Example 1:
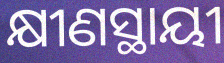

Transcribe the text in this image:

କ୍ଷୀଣସ୍ଥାୟୀ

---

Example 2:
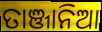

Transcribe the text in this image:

ତାଞ୍ଜାନିଆ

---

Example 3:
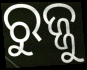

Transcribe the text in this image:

ରୁଜ୍ଜୁ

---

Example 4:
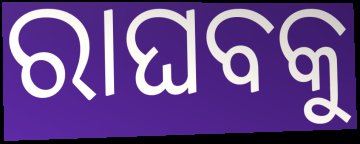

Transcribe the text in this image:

ରାଘବକୁ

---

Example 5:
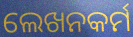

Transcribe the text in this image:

ଲେଖନକର୍ମ